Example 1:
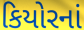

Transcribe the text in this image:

કિયોરનાં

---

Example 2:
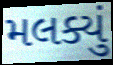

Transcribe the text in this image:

મલક્યું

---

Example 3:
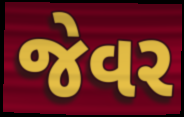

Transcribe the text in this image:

જેવર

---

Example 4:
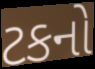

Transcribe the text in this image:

ટકનો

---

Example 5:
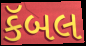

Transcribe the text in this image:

કૅબલ